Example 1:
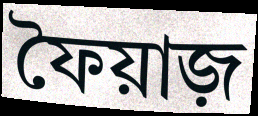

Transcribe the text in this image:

ফৈয়াজ়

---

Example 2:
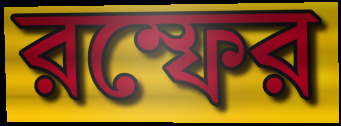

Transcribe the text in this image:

রম্ফের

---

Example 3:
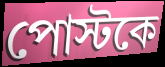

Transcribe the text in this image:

পোস্টকে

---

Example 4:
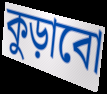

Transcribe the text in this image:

কুড়াবো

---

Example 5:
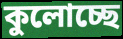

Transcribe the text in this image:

কুলোচ্ছে